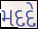
મદદે